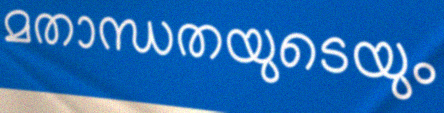
മതാന്ധതയുടെയും